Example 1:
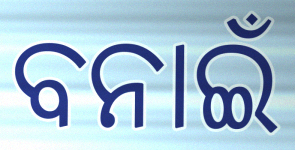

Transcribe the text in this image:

ବନାଇଁ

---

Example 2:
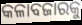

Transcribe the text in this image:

କଳାବଜାରକୁ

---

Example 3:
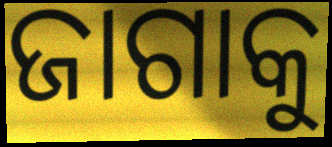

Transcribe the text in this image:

ଜାଗାକୁ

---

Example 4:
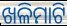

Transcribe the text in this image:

ଖଳିମାଟି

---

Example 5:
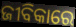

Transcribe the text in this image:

ଜୀବିକାରେ